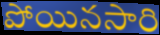
పోయినసారి